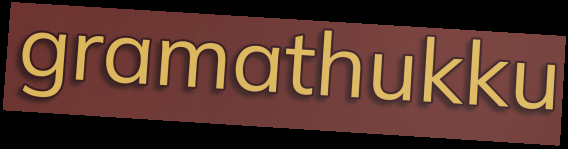
gramathukku